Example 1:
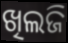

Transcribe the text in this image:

ଖିଲଜି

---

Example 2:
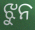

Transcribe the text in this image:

ଝୁନ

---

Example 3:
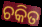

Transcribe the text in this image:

ଚକିତ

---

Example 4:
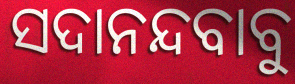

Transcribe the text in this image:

ସଦାନନ୍ଦବାବୁ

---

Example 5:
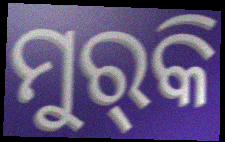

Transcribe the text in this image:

ମୁର୍‌କି